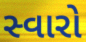
સ્વારો